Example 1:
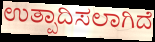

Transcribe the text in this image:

ಉತ್ಪಾದಿಸಲಾಗಿದೆ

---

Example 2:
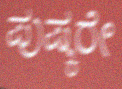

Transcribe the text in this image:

ಪುಷ್ಕರೇ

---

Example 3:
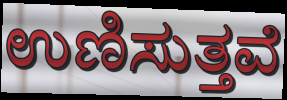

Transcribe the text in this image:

ಉಣಿಸುತ್ತವೆ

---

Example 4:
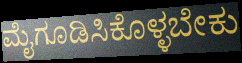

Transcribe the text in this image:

ಮೈಗೂಡಿಸಿಕೊಳ್ಳಬೇಕು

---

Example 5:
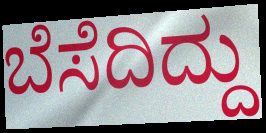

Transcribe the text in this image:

ಬೆಸೆದಿದ್ದು